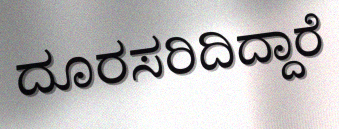
ದೂರಸರಿದಿದ್ದಾರೆ